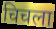
चिचला